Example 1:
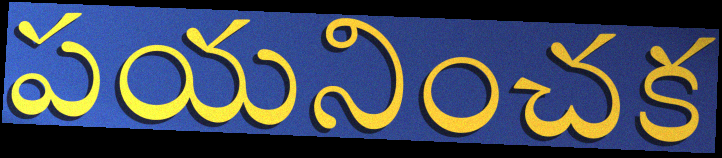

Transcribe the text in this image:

పయనించక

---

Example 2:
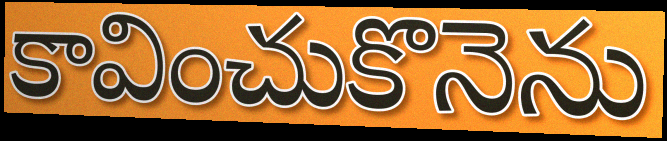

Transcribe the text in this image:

కావించుకొనెను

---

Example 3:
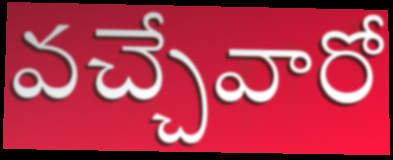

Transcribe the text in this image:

వచ్చేవారో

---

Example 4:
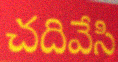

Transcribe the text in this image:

చదివేసి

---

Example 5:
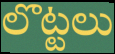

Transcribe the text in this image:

లొట్టలు